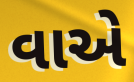
વાએ